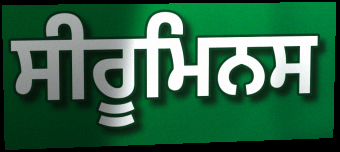
ਸੀਰੂਮਿਨਸ